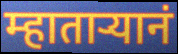
म्हातार्‍यानं